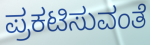
ಪ್ರಕಟಿಸುವಂತೆ